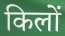
किलों